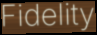
Fidelity